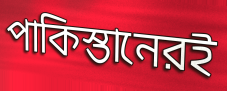
পাকিস্তানেরই